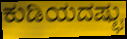
ಕುಡಿಯದಷ್ಟು